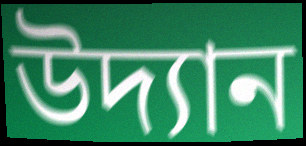
উদ্যান